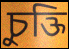
চুক্তি